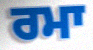
ਰਮਾ